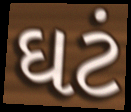
ઘટં